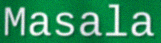
Masala